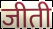
जीती